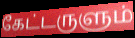
கேட்டருளும்